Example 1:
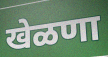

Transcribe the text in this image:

खेळणा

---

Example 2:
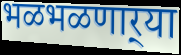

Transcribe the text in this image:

भळभळणार्या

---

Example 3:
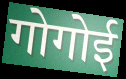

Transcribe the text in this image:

गोगोई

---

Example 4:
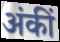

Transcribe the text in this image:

अंकीं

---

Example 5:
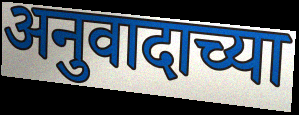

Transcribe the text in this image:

अनुवादाच्या